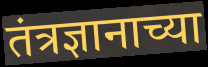
तंत्रज्ञानाच्या